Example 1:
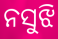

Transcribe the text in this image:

ନସୁଝି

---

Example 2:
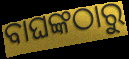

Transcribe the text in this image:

ବାଘଙ୍କଠାରୁ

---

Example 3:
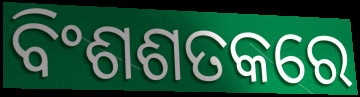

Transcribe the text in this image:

ବିଂଶଶତକରେ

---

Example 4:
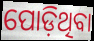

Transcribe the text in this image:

ପୋଡ଼ିଥିବା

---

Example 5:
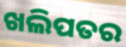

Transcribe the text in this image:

ଖଲିପତର